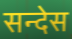
सन्देस